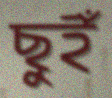
ছুইঁ